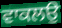
ਵਾਕਲਉ